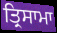
ਤ੍ਰਿਸਾਮਾ